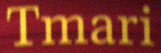
Tmari